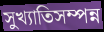
সুখ্যাতিসম্পন্ন